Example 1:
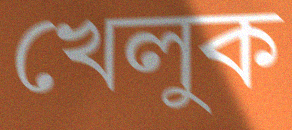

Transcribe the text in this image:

খেলুক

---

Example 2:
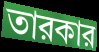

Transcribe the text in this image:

তারকার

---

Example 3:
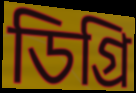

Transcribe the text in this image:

ডিগ্রি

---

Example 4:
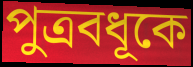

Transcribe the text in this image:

পুত্রবধূকে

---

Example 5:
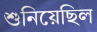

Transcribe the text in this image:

শুনিয়েছিল